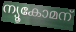
ന്യൂകോമന്